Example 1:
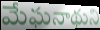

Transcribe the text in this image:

మేఘనాథుని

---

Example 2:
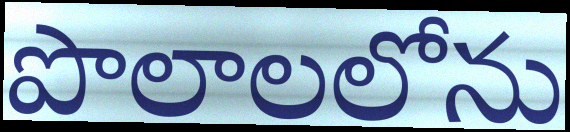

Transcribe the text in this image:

పొలాలలోను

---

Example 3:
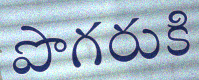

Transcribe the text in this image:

పొగరుకి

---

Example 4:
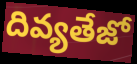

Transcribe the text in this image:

దివ్యతేజో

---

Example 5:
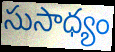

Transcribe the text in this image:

సుసాధ్యం